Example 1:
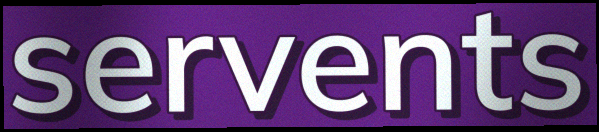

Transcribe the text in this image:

servents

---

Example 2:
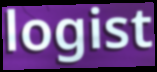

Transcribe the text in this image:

logist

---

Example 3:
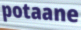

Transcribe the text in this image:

potaane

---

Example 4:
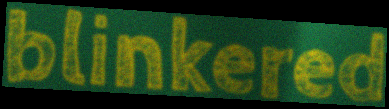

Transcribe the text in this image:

blinkered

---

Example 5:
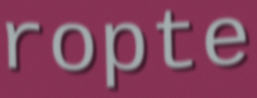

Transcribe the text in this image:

ropte